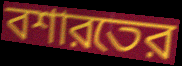
বশারতের